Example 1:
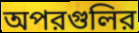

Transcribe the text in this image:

অপরগুলির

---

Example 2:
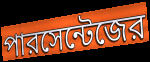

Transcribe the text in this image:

পারসেন্টেজের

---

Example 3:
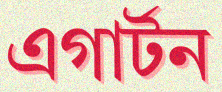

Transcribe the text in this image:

এগার্টন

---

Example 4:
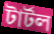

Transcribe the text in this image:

টার্টল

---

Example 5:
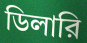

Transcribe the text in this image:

ডিলারি